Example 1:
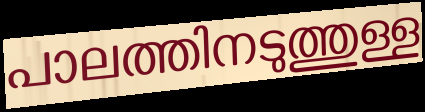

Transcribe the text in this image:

പാലത്തിനടുത്തുള്ള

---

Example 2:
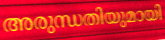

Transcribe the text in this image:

അരുന്ധതിയുമായി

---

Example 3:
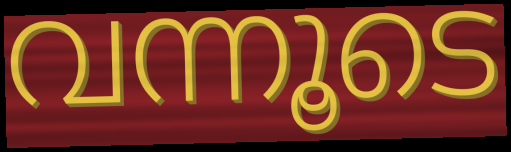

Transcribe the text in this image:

വന്നൂടെ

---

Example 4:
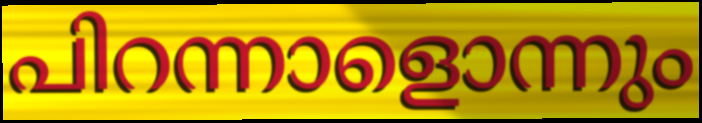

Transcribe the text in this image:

പിറന്നാളൊന്നും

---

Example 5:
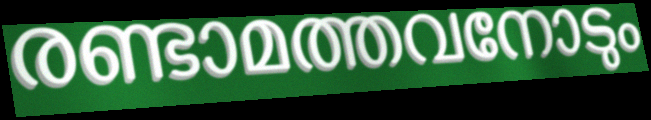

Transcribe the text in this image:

രണ്ടാമത്തവനോടും